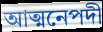
আত্মনেপদী